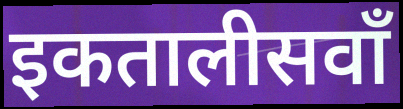
इकतालीसवाँ